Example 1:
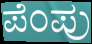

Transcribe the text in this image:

ಪೆಂಪು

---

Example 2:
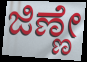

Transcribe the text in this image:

ಜಿಣ್ಣೇ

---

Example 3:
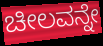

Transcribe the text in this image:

ಚೀಲವನ್ನೇ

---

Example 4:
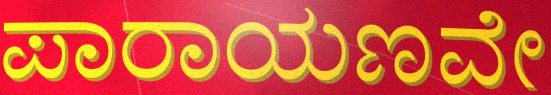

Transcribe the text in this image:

ಪಾರಾಯಣವೇ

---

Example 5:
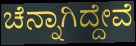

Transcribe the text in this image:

ಚೆನ್ನಾಗಿದ್ದೇವೆ